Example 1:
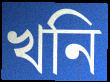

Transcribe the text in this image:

খনি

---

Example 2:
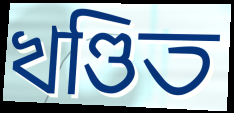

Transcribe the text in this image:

খণ্ডিত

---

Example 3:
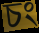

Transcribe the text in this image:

চং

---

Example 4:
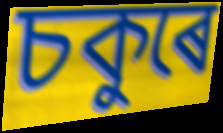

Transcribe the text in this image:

চকুৰে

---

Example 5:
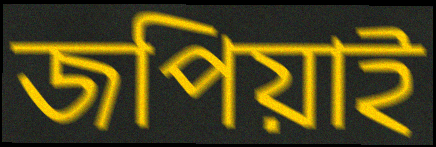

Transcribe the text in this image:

জপিয়াই